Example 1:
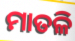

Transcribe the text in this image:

ମାତଳି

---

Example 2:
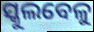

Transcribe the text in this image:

ସ୍କୁଲବେଳୁ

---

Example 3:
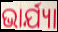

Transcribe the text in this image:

ଭାର୍ଯ୍ୟା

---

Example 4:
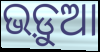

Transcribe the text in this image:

ଭଡ଼ୁଆ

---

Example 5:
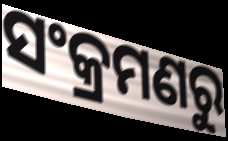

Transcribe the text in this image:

ସଂକ୍ରମଣରୁ